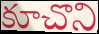
కూచొని